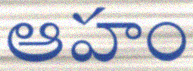
ఆహం